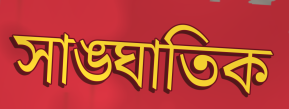
সাঙ্ঘাতিক